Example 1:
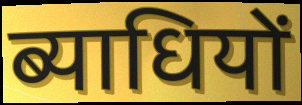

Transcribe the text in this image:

ब्याधियों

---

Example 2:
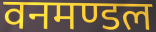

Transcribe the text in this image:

वनमण्डल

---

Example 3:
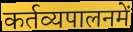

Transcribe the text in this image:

कर्तव्यपालनमें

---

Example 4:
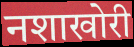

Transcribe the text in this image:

नशाखोरी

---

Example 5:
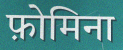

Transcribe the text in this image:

फ़ोमिना